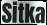
Sitka